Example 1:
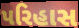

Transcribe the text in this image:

પરિહાસ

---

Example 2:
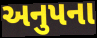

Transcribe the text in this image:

અનુપના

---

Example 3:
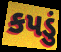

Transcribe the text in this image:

કપડું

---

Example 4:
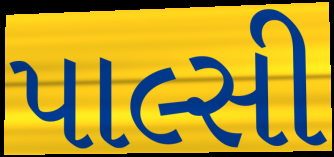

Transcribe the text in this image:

પાલ્સી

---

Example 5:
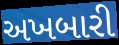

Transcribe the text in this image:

અખબારી